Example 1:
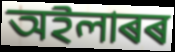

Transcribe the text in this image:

অইলাৰৰ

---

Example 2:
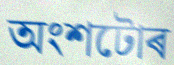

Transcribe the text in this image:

অংশটোৰ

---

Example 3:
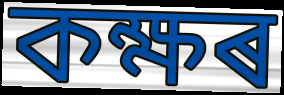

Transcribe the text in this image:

কক্ষৰ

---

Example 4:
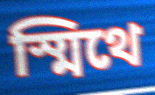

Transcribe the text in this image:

স্মিথে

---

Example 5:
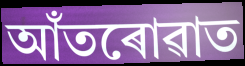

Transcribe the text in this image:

আঁতৰোৱাত